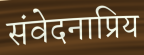
संवेदनाप्रिय